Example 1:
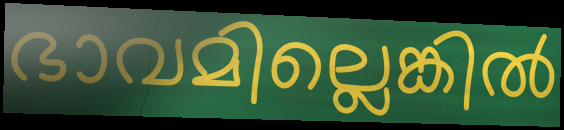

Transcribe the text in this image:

ഭാവമില്ലെങ്കിൽ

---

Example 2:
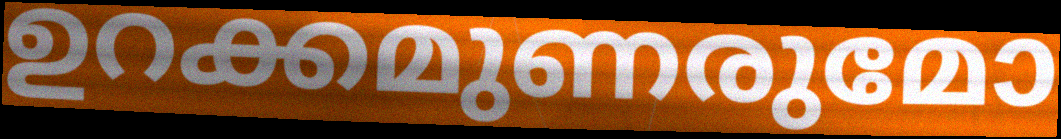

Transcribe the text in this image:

ഉറക്കമുണരുമോ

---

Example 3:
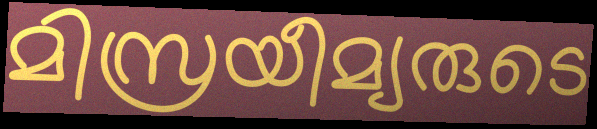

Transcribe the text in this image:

മിസ്രയീമ്യരുടെ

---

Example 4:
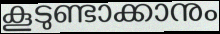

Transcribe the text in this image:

കൂടുണ്ടാക്കാനും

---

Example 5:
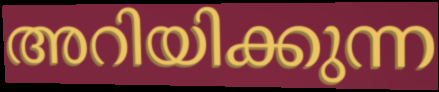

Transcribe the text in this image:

അറിയിക്കുന്ന